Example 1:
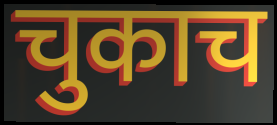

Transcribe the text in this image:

चुकाच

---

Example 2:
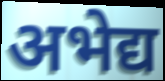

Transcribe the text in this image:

अभेद्य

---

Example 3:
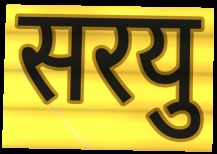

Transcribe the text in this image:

सरयु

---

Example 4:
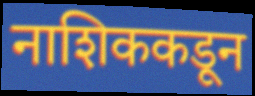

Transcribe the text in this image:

नाशिककडून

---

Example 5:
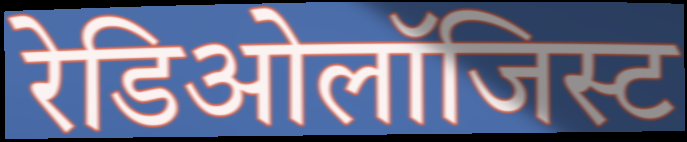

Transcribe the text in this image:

रेडिओलॉजिस्ट